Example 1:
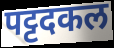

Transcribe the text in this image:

पट्टदकल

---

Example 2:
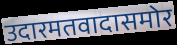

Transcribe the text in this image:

उदारमतवादासमोर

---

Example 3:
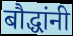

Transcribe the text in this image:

बौद्धांनी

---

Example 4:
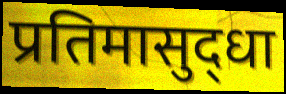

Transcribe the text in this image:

प्रतिमासुद्धा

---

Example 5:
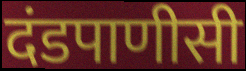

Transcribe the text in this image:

दंडपाणीसी